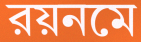
রয়নমে